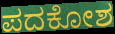
ಪದಕೋಶ